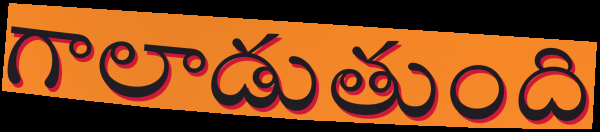
గాలాడుతుంది